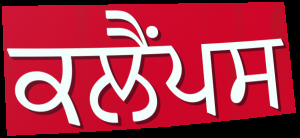
ਕਲੈਂਪਸ